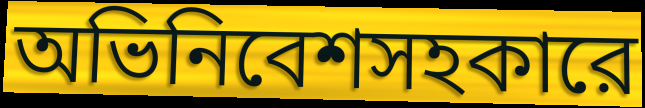
অভিনিবেশসহকারে